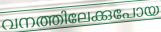
വനത്തിലേക്കുപോയ